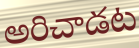
అరిచాడట